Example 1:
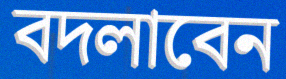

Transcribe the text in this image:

বদলাবেন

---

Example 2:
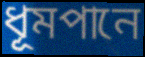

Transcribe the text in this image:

ধূমপানে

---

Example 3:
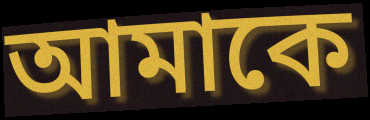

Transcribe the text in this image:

আমাকে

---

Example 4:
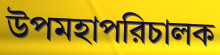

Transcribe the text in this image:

উপমহাপরিচালক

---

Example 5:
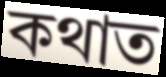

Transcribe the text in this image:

কথাত